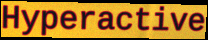
Hyperactive